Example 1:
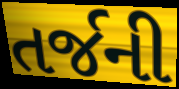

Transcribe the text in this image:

તર્જની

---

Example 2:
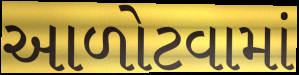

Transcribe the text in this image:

આળોટવામાં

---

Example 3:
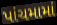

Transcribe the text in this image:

પાંચમામાં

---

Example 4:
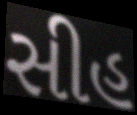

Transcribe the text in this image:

સીહ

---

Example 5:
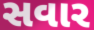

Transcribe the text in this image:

સવાર